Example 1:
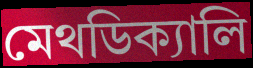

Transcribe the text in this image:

মেথডিক্যালি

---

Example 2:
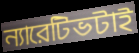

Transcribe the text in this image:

ন্যারেটিভটাই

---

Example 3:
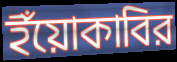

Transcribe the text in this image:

ইঁয়োকাবির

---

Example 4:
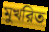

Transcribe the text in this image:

মুখরিত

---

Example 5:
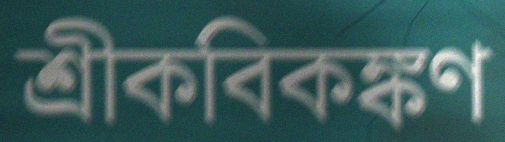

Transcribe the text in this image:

শ্রীকবিকঙ্কণ